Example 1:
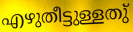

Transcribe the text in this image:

എഴുതീട്ടുള്ളതു്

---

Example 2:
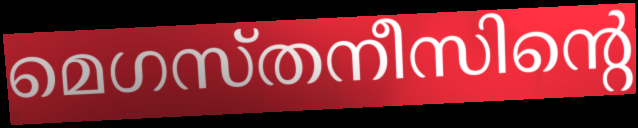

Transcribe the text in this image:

മെഗസ്തനീസിന്റെ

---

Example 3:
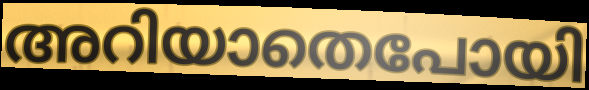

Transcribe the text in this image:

അറിയാതെപോയി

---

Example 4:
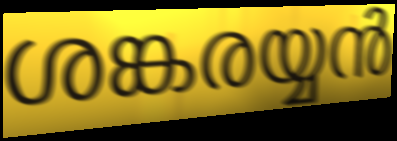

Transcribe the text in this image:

ശങ്കരയ്യൻ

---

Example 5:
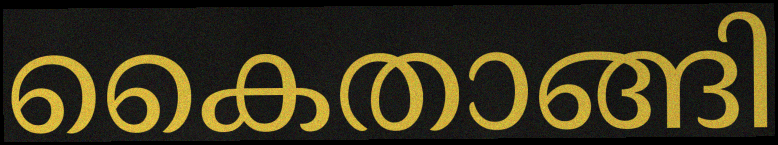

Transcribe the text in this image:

കൈതാങ്ങി